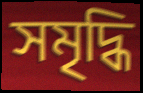
সমৃদ্ধি